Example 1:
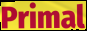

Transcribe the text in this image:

Primal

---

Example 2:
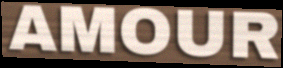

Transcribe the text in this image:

AMOUR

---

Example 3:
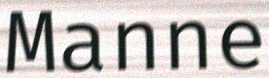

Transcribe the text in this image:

Manne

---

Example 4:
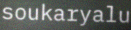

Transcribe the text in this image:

soukaryalu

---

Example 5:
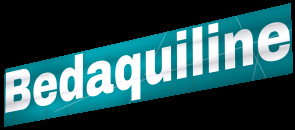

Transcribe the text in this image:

Bedaquiline